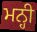
ਮਨ੍ਹੀ